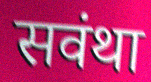
सवंथा